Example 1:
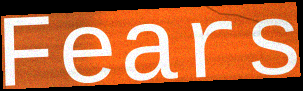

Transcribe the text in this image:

Fears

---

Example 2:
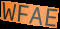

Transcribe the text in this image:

WFAE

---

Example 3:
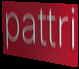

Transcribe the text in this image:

pattri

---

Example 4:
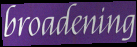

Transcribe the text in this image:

broadening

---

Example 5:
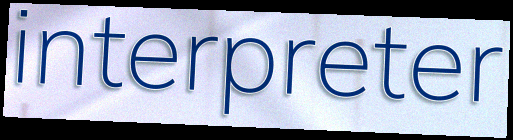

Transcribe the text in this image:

interpreter